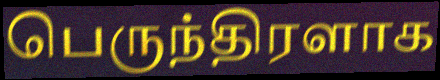
பெருந்திரளாக